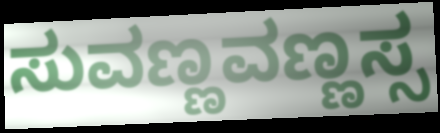
ಸುವಣ್ಣವಣ್ಣಸ್ಸ